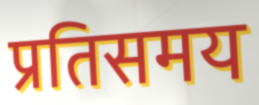
प्रतिसमय